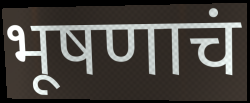
भूषणाचं